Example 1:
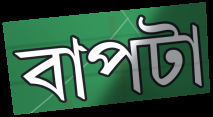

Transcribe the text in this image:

বাপটা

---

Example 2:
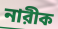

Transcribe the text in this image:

নারীক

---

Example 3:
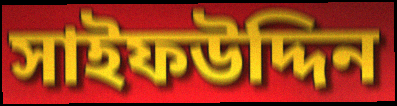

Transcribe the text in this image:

সাইফউদ্দিন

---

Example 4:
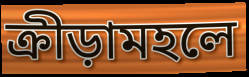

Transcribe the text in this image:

ক্রীড়ামহলে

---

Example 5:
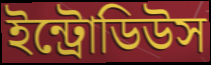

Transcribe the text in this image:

ইন্ট্রোডিউস